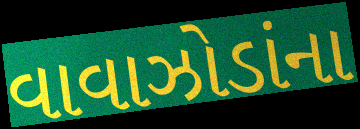
વાવાઝોડાંના